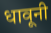
धावूनी